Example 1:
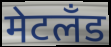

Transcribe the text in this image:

मेटलँड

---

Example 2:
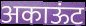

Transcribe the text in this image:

अकाऊंट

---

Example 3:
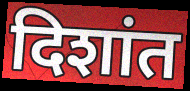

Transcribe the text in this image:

दिशांत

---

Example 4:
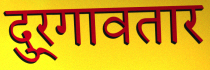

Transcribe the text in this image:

दुर्गावतार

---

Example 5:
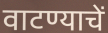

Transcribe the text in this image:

वाटण्याचें